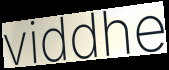
viddhe